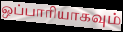
ஒப்பாரியாகவும்